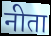
नीता